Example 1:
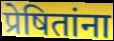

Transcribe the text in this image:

प्रेषितांना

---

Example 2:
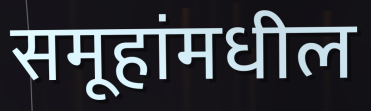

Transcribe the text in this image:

समूहांमधील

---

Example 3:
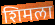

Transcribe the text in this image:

शिमला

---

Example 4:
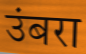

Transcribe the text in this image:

उंबरा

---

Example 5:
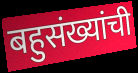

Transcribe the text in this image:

बहुसंख्यांची